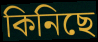
কিনিছে